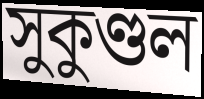
সুকুণ্ডল